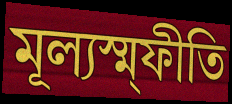
মূল্যস্ম্ফীতি